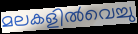
മലകളിൽവെച്ചു